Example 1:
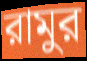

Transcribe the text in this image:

রামুর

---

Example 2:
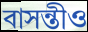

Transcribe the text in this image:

বাসন্তীও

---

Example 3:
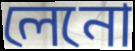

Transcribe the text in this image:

লেনো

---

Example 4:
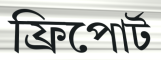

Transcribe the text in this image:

ফ্রিপোর্ট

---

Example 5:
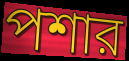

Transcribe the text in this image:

পশার